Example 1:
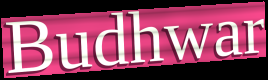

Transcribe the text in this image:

Budhwar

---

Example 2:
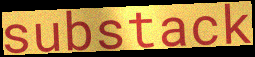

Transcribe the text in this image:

substack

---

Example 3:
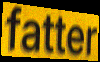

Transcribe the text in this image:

fatter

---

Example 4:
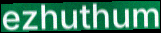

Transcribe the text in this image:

ezhuthum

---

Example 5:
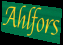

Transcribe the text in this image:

Ahlfors